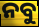
ନବୁ